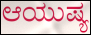
ಆಯುಷ್ಯ